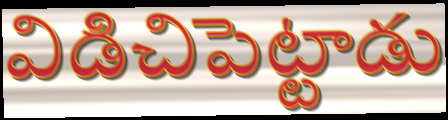
విడిచిపెట్టాడు